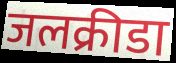
जलक्रीडा